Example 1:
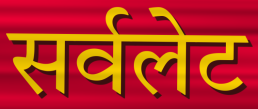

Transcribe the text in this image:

सर्वलेट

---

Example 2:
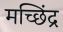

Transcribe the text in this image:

मच्छिंद्र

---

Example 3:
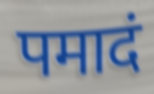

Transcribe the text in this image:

पमादं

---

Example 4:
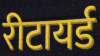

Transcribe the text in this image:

रीटायर्ड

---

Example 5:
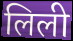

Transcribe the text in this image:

लिली